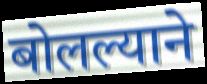
बोलल्याने